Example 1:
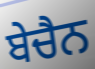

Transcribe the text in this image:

ਬੇਚੈਨ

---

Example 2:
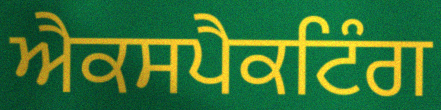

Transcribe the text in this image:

ਐਕਸਪੈਕਟਿੰਗ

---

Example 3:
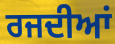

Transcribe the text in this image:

ਰਜਦੀਆਂ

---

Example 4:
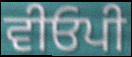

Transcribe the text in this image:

ਵੀਓਪੀ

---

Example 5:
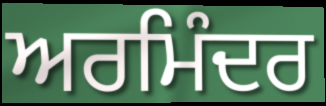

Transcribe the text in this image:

ਅਰਮਿੰਦਰ